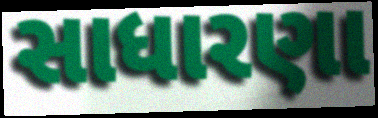
સાધારણા